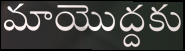
మాయొద్దకు